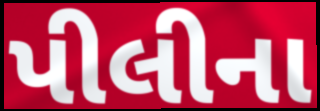
પીલીના